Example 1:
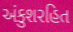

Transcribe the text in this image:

અંકુશરહિત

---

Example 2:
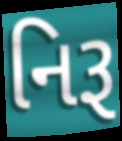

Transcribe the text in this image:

નિરૂ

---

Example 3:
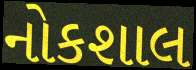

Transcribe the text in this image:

નોકશાલ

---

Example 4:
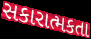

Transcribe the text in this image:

સકારાત્મકતા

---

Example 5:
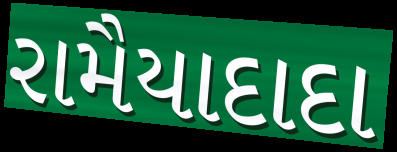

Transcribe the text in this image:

રામૈયાદાદા